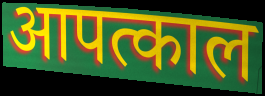
आपत्काल